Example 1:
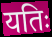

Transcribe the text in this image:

यतिः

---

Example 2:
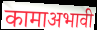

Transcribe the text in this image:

कामाअभावी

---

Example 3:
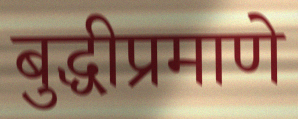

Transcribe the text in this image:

बुद्धीप्रमाणे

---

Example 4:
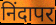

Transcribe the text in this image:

निंदापर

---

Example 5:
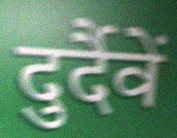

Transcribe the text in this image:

दुर्दैवें